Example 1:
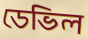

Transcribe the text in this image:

ডেভিল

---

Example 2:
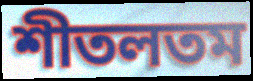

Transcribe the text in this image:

শীতলতম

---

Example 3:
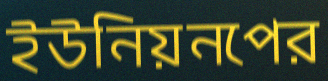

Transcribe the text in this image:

ইউনিয়নপের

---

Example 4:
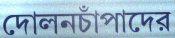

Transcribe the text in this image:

দোলনচাঁপাদের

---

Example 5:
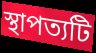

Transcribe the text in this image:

স্থাপত্যটি